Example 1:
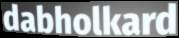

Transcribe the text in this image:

dabholkard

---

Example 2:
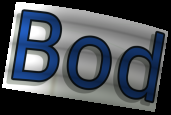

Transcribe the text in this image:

Bod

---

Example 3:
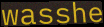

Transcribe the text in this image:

wasshe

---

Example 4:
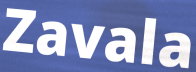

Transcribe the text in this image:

Zavala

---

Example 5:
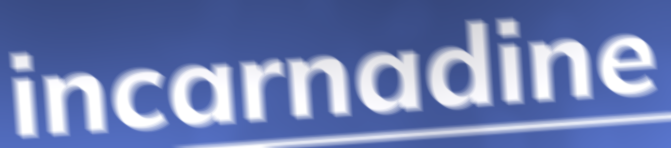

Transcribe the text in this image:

incarnadine